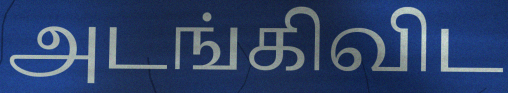
அடங்கிவிட